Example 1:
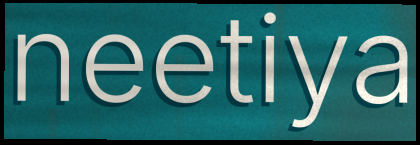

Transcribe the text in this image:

neetiya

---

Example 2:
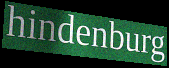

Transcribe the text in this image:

hindenburg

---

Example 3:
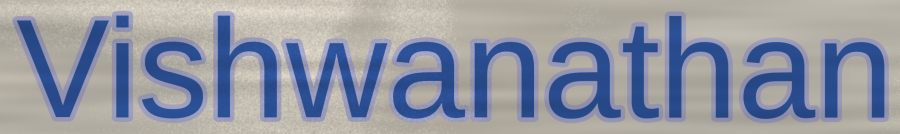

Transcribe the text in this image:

Vishwanathan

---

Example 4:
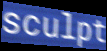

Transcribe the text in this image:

sculpt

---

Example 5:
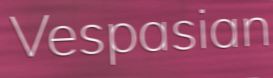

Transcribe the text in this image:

Vespasian